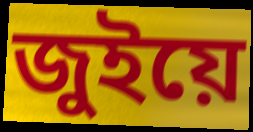
জুইয়ে